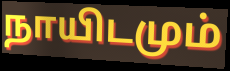
நாயிடமும்